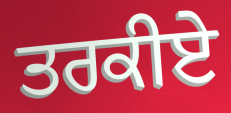
ਤਰਕੀਏ